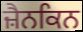
ਜ਼ੈਨਕਿਨ